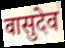
वासुदेव